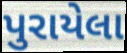
પુરાયેલા